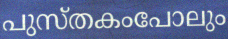
പുസ്തകംപോലും